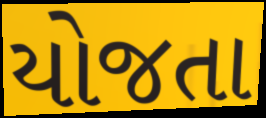
યોજતા